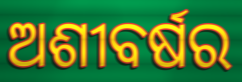
ଅଶୀବର୍ଷର